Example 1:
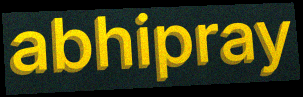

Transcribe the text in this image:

abhipray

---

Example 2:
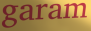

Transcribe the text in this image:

garam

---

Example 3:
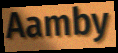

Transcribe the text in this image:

Aamby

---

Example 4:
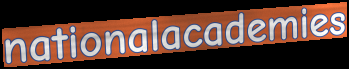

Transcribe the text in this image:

nationalacademies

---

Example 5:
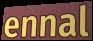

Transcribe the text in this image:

ennal